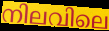
നിലവിലെ